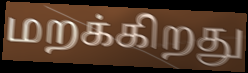
மறக்கிறது